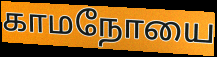
காமநோயை